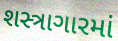
શસ્ત્રાગારમાં